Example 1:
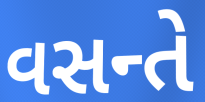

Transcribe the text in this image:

વસન્તે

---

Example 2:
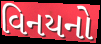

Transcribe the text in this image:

વિનયનો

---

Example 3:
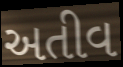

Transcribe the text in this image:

અતીવ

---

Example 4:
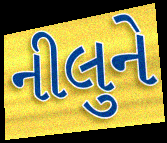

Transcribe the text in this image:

નીલુને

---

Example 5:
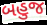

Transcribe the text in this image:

બહુજ